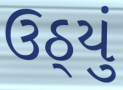
ઉઠ્યું